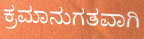
ಕ್ರಮಾನುಗತವಾಗಿ